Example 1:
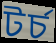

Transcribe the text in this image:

টর্চ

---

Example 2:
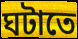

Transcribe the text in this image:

ঘটাতে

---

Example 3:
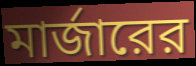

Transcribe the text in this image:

মার্জারের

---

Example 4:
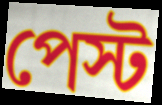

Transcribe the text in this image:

পেস্ট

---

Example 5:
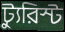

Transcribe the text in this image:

ট্যুরিস্ট